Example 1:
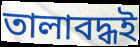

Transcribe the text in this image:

তালাবদ্ধই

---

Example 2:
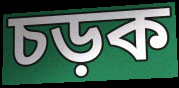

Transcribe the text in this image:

চড়ক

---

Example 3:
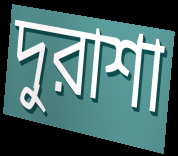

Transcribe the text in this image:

দুরাশা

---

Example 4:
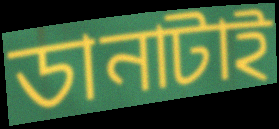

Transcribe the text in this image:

ডানাটাই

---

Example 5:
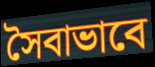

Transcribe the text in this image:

সৈবাভাবে